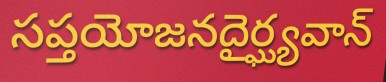
సప్తయోజనదైర్ఘ్యవాన్